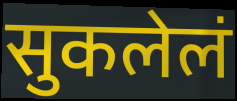
सुकलेलं